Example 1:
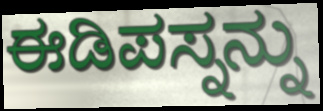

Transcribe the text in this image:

ಈಡಿಪಸ್ನನ್ನು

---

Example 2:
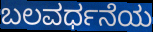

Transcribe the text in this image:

ಬಲವರ್ಧನೆಯ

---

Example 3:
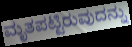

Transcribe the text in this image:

ಮೃತಪಟ್ಟಿರುವುದನ್ನು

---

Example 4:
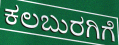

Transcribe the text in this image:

ಕಲಬುರಗಿಗೆ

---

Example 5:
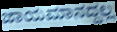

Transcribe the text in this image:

ಜಾಯಮಾನದ್ದಲ್ಲ